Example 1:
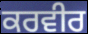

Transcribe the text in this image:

ਕਰਵੀਰ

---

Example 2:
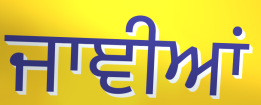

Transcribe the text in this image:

ਜਾਞੀਆਂ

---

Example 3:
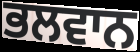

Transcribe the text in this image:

ਭਲਵਾਨ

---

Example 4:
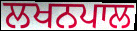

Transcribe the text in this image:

ਲਖਨਪਾਲ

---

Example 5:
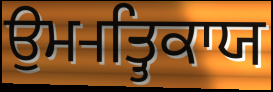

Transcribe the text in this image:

ਉਮ੍ਮਤ੍ਤਿਕਾਯ